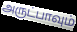
அருட்பாவும்